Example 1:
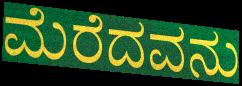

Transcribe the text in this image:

ಮೆರೆದವನು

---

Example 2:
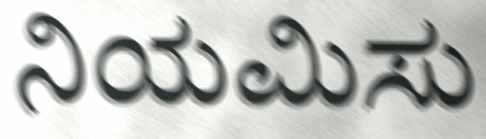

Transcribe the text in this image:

ನಿಯಮಿಸು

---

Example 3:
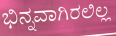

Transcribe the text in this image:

ಭಿನ್ನವಾಗಿರಲಿಲ್ಲ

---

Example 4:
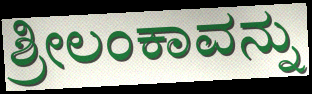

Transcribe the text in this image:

ಶ್ರೀಲಂಕಾವನ್ನು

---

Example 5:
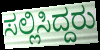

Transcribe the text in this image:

ಸಲ್ಲಿಸಿದ್ದರು